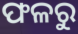
ଫଳରୁ